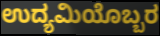
ಉದ್ಯಮಿಯೊಬ್ಬರ